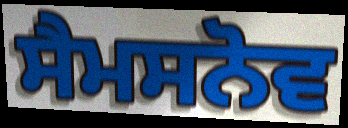
ਸੈਮਸਨੋਵ